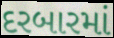
દરબારમાં